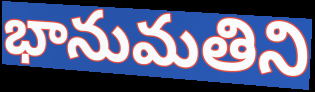
భానుమతిని